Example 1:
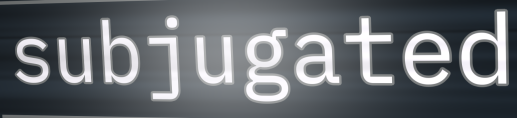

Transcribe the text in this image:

subjugated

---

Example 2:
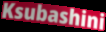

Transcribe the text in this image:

Ksubashini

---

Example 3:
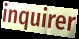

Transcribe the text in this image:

inquirer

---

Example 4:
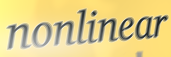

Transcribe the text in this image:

nonlinear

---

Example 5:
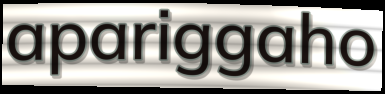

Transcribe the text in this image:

apariggaho